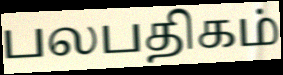
பலபதிகம்